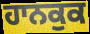
ਹਾਨਕੁਕ